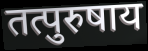
तत्पुरुषाय